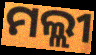
ମଲ୍ଲୀ